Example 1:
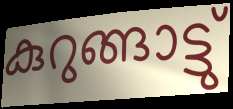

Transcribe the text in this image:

കുറുങ്ങാട്ടു്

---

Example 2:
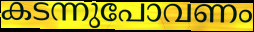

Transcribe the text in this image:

കടന്നുപോവണം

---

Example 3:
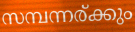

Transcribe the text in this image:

സമ്പന്നര്ക്കും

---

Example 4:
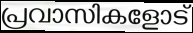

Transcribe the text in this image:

പ്രവാസികളോട്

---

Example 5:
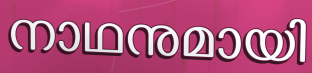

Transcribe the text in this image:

നാഥനുമായി